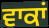
ਵਾਕਾਂ